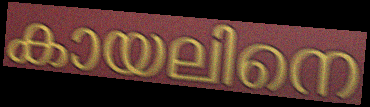
കായലിനെ